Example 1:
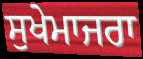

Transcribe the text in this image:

ਸੁਖੇਮਾਜਰਾ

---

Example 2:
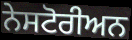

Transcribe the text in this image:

ਨੇਸਟੋਰੀਅਨ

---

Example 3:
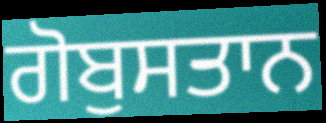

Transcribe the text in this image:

ਗੋਬੁਸਤਾਨ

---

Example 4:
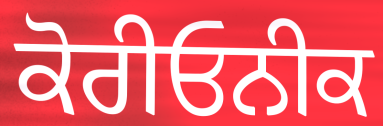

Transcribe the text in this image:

ਕੋਰੀਓਨੀਕ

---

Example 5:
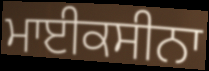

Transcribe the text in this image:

ਮਾਈਕਸੀਨਾ